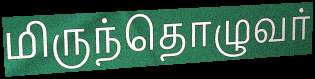
மிருந்தொழுவர்